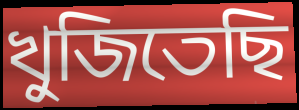
খুজিতেছি